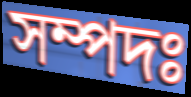
সম্পদঃ